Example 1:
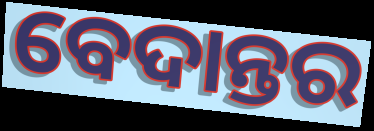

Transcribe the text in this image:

ବେଦାନ୍ତର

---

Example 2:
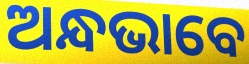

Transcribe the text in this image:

ଅନ୍ଧଭାବେ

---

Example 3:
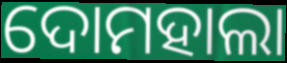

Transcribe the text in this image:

ଦୋମହାଲା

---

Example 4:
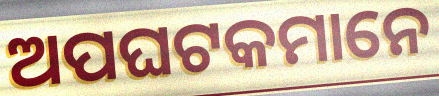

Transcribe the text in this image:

ଅପଘଟକମାନେ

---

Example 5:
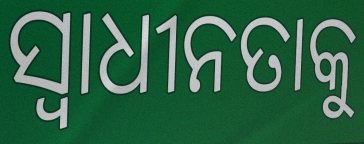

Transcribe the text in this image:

ସ୍ଵାଧୀନତାକୁ